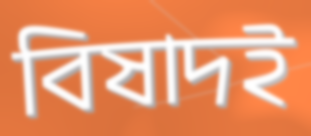
বিষাদই